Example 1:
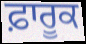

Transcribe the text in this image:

ਫ਼ਾਰੂਕ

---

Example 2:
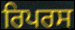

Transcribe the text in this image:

ਰਿਪਰਸ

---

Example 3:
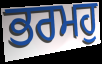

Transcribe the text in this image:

ਭਰਮਹੁ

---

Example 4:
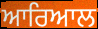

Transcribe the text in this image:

ਆਰਿਆਲ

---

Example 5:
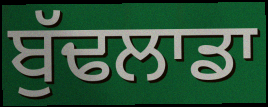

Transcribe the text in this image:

ਬੁੱਢਲਾਡਾ